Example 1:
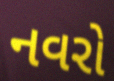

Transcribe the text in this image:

નવરો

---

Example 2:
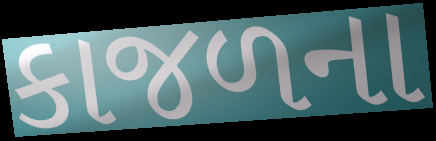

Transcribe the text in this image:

કાજળના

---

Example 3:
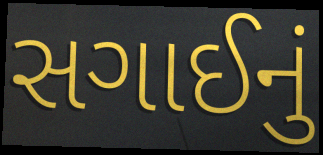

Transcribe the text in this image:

સગાઈનું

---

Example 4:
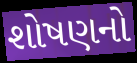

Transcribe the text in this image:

શોષણનો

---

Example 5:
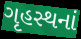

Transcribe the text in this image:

ગૃહસ્થનાં